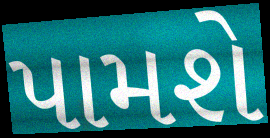
પામશે